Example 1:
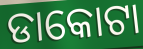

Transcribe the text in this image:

ଡାକୋଟା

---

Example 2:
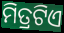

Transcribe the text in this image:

ମିତ୍ରଟିଏ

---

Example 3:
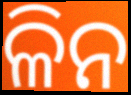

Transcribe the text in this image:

ଳିନ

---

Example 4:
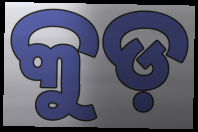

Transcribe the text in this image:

କୁଡ଼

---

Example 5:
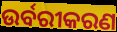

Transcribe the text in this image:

ଉର୍ବରୀକରଣ